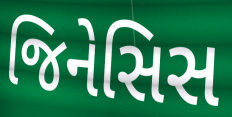
જિનેસિસ